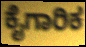
ಕೈಗಾರಿಕ